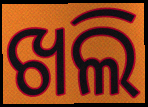
ଖଲି